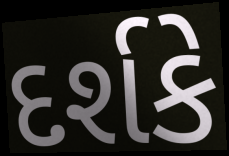
દર્શકે